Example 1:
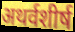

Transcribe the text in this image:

अथर्वशीर्ष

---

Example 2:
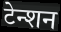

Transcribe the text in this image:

टेन्शन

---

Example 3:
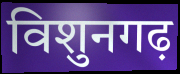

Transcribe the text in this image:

विशुनगढ़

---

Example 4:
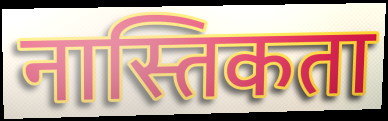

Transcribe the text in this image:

नास्तिकता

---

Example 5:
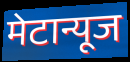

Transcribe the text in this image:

मेटान्यूज